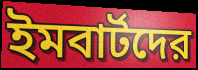
ইমবার্টদের